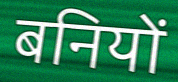
बनियों